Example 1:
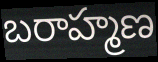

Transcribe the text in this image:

బరాహ్మణ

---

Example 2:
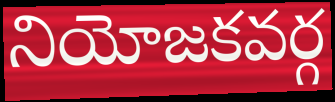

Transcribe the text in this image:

నియోజకవర్గ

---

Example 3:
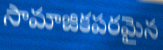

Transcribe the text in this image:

సామాజికపరమైన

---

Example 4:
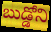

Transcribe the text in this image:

బుడ్డోని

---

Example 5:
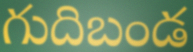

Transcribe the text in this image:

గుదిబండ